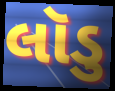
લૉડુ